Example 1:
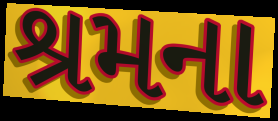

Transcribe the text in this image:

શ્રમના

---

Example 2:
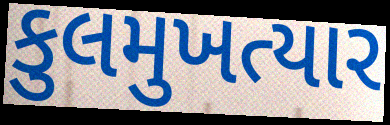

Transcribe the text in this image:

કુલમુખત્યાર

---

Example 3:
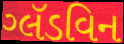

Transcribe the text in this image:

ગ્લૅડવિન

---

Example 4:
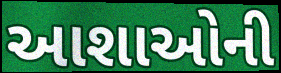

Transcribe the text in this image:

આશાઓની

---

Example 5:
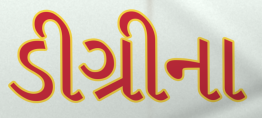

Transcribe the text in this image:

ડીગ્રીના